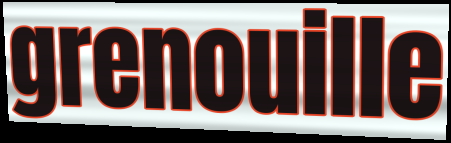
grenouille